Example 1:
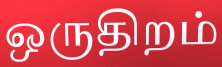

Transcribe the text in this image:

ஒருதிறம்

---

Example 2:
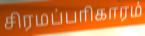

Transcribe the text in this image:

சிரமப்பரிகாரம்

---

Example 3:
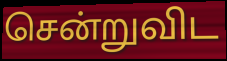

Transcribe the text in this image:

சென்றுவிட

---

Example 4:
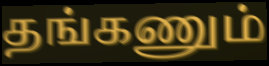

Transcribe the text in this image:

தங்கணும்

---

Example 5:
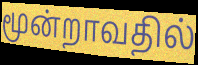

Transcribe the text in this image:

மூன்றாவதில்